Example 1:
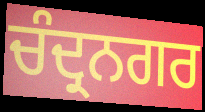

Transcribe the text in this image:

ਚੰਦ੍ਰਨਗਰ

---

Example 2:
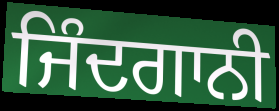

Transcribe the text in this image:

ਜਿੰਦਗਾਨੀ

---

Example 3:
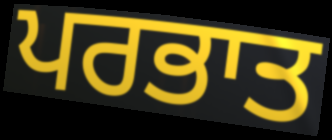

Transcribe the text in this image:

ਪਰਭਾਤ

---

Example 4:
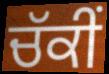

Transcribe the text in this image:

ਚੱਕੀਂ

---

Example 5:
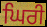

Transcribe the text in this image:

ਘਿਰੀ